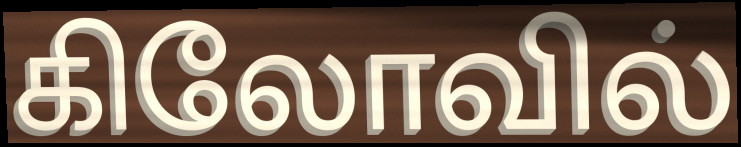
கிலோவில்